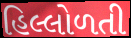
હિલ્લોળતી